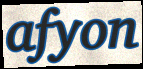
afyon